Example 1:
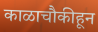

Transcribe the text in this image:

काळाचौकीहून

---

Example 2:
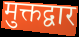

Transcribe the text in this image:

मुक्तद्वार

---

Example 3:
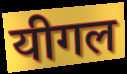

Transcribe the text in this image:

यीगल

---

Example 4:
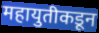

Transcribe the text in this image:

महायुतीकडून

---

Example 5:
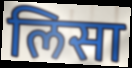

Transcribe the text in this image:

लिसा